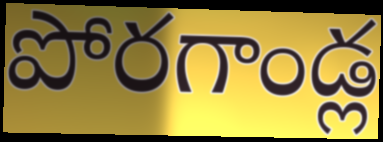
పోరగాండ్ల